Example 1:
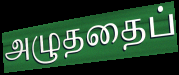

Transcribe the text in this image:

அழுததைப்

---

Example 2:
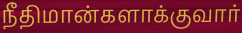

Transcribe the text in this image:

நீதிமான்களாக்குவார்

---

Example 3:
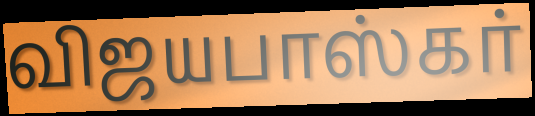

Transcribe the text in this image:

விஜயபாஸ்கர்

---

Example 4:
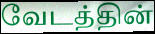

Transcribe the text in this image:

வேடத்தின்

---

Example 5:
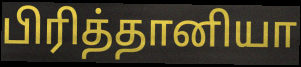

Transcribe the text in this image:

பிரித்தானியா